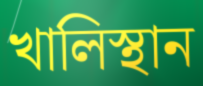
খালিস্থান